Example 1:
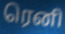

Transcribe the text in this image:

ரெனி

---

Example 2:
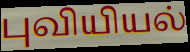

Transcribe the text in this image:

புவியியல்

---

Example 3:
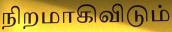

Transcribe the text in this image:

நிறமாகிவிடும்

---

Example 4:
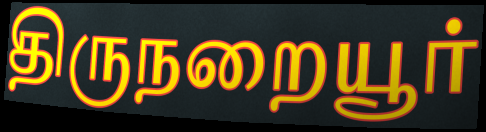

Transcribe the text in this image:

திருநறையூர்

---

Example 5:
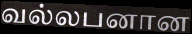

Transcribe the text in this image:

வல்லபனான